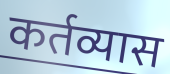
कर्तव्यास